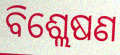
ବିଶ୍ଲେଷଣ